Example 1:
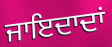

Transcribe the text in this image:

ਜਾਇਦਾਦਾਂ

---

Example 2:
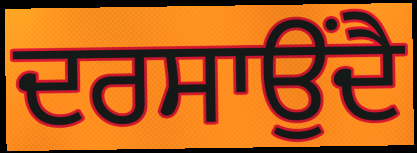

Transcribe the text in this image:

ਦਰਸਾਉਂਦੈ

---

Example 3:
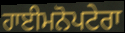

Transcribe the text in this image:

ਹਾਈਮਨੋਪਟੇਰਾ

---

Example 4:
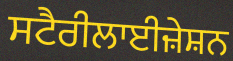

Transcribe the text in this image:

ਸਟੈਰੀਲਾਈਜ਼ੇਸ਼ਨ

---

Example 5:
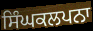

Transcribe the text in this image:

ਸਿੰਘਕਲਪਨਾ